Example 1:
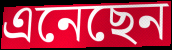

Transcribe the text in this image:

এনেছেন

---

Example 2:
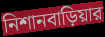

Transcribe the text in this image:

নিশানবাড়িয়ার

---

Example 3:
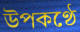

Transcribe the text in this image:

উপকণ্ঠে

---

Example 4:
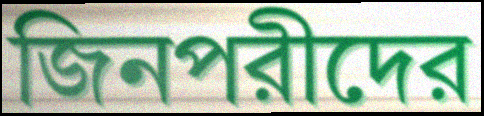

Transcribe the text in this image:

জিনপরীদের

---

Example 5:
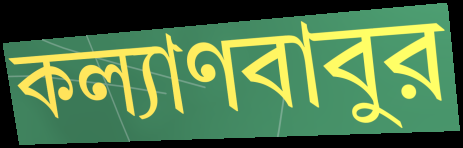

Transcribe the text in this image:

কল্যাণবাবুর